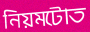
নিয়মটোত